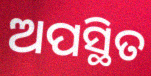
ଅପସ୍ଥିତ